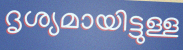
ദൃശ്യമായിട്ടുള്ള